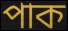
পাক